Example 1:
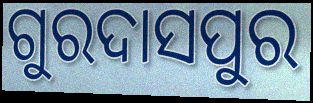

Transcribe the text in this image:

ଗୁରଦାସପୁର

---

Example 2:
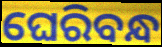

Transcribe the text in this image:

ଘେରିବନ୍ଧ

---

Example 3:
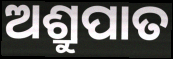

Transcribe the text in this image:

ଅଶ୍ରୁପାତ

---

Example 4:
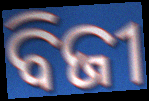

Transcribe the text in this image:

ବିଜୀ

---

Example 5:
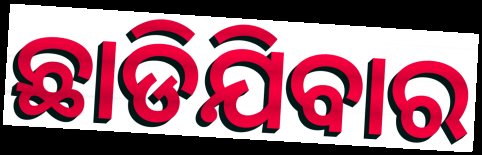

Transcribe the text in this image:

ଛାଡିଯିବାର